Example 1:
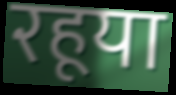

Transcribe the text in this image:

रहूया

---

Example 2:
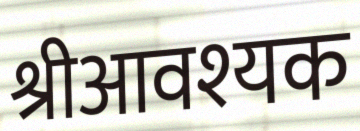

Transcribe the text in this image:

श्रीआवश्यक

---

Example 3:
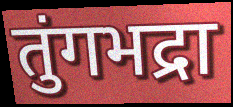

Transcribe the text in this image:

तुंगभद्रा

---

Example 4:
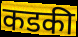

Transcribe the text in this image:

कडकी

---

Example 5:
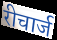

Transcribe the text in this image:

रीचार्ज